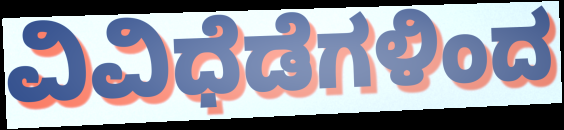
ವಿವಿಧೆಡೆಗಳಿಂದ